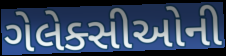
ગેલેક્સીઓની